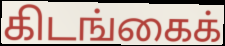
கிடங்கைக்